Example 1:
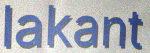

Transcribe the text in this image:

lakant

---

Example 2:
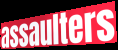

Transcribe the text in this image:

assaulters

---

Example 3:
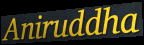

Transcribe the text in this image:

Aniruddha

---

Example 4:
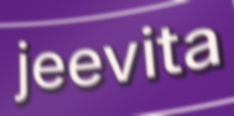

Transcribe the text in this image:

jeevita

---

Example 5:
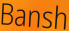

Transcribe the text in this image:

Bansh